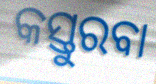
କସ୍ତୁରବା